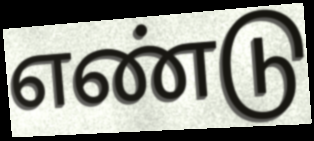
எண்டு